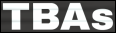
TBAs